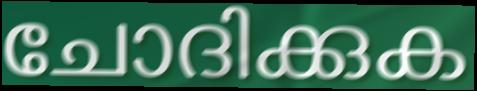
ചോദിക്കുക